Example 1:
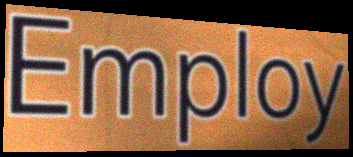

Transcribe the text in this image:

Employ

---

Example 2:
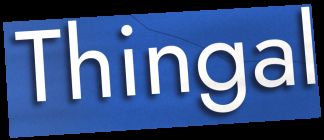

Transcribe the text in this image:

Thingal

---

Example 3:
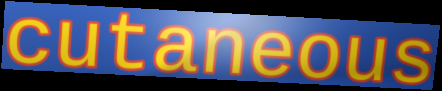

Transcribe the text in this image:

cutaneous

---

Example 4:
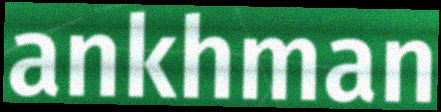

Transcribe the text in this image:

ankhman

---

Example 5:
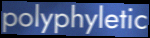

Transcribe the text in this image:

polyphyletic